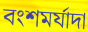
বংশমর্যাদা